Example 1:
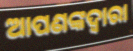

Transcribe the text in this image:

ଆପଣଙ୍କଦ୍ଵାରା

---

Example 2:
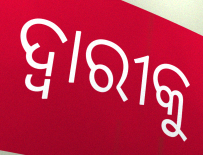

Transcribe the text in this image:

ଦ୍ଵାରୀକୁ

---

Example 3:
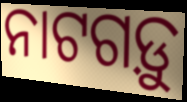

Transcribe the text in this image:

ନାଟଗଡ଼ୁ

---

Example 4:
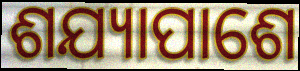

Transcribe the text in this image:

ଶଯ୍ୟାପାଶେ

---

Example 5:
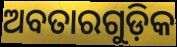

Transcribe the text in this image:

ଅବତାରଗୁଡ଼ିକ